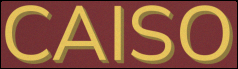
CAISO